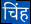
चिंह